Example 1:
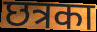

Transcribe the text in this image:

छत्रका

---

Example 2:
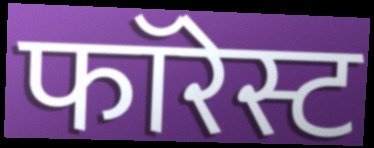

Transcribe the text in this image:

फॉरेस्‍ट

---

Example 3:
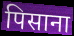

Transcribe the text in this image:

पिसाना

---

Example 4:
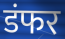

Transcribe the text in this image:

डंफर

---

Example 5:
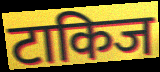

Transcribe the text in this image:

टाकिज